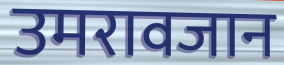
उमरावजान